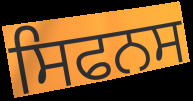
ਸਿਫਨਸ